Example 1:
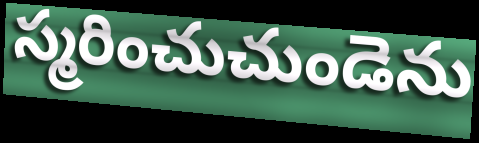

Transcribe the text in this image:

స్మరించుచుండెను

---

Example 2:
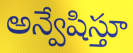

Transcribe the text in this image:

అన్వేషిస్తూ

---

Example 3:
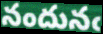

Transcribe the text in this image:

నందునఁ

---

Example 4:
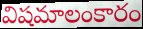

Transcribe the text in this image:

విషమాలంకారం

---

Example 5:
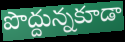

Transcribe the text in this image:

పొద్దున్నకూడా